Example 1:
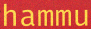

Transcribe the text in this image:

hammu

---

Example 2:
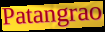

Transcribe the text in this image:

Patangrao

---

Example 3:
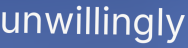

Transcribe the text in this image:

unwillingly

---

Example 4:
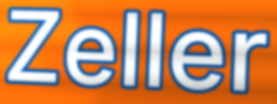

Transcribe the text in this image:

Zeller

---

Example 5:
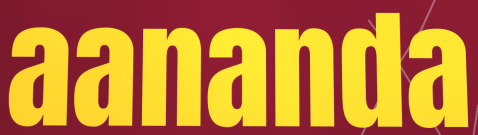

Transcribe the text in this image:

aananda